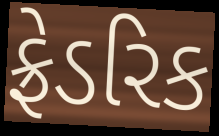
ફ્રેડરિક